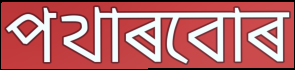
পথাৰবোৰ